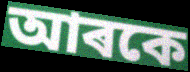
আৰকে